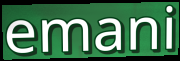
emani